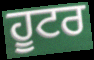
ਹੂਟਰ